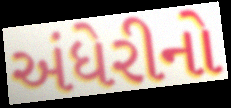
અંધેરીનો